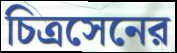
চিত্রসেনের